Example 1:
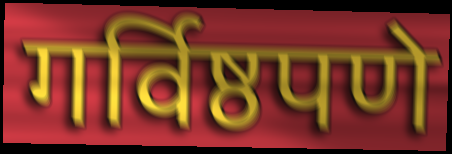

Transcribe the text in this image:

गर्विष्ठपणे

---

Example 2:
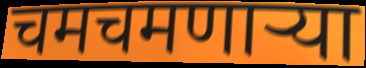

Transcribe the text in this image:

चमचमणार्‍या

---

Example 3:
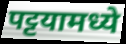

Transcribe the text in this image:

पट्टयामध्ये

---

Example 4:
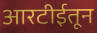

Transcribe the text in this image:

आरटीईतून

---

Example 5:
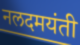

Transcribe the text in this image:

नलदमयंती